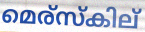
മെര്സ്കില്